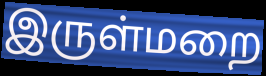
இருள்மறை